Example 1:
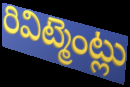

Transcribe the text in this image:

రివిట్మెంట్లు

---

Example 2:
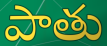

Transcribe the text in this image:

పాతు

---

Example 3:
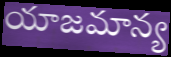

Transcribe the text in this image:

యాజమాన్య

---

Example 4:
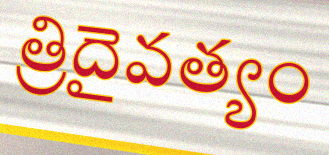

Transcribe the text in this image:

త్రిదైవత్యం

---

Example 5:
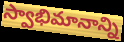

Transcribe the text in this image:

స్వాభిమానాన్ని